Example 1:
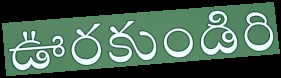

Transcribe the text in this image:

ఊరకుండిరి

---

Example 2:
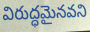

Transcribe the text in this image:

విరుద్ధమైనవని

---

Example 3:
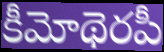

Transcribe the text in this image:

కీమోథెరపీ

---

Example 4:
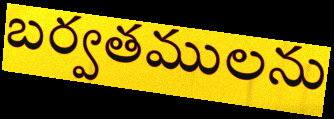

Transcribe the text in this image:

బర్వతములను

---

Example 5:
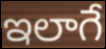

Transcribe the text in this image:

ఇలాగే